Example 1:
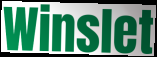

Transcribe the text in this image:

Winslet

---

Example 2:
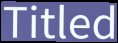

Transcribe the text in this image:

Titled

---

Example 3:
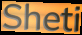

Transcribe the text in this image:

Sheti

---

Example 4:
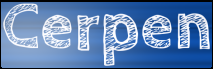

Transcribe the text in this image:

Cerpen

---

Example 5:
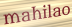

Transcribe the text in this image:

mahilao